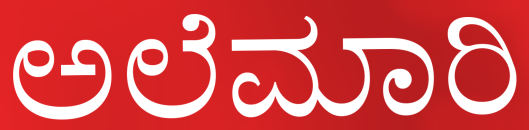
ಅಲೆಮಾರಿ